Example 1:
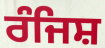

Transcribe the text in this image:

ਰੰਜਿਸ਼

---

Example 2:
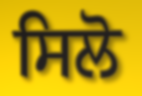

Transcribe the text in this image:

ਸਿਲੋ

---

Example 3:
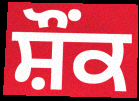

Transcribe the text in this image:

ਸ਼ੌੰਕ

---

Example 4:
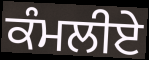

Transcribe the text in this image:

ਕੰਮਲੀਏ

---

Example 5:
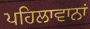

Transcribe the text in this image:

ਪਹਿਲਾਵਾਨਾਂ